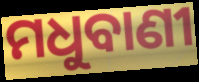
ମଧୁବାଣୀ